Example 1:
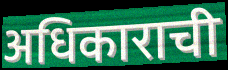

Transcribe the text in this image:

अधिकाराची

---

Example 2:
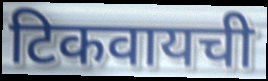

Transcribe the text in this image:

टिकवायची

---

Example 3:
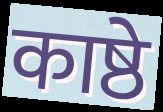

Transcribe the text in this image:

काष्ठे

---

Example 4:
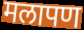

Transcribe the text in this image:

मलापण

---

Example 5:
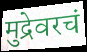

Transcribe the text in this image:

मुद्रेवरचं